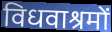
विधवाश्रमों